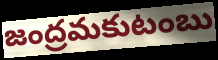
జంద్రమకుటంబు